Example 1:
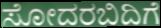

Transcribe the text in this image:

ಸೋದರಬಿದಿಗೆ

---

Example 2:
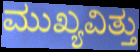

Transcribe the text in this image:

ಮುಖ್ಯವಿತ್ತು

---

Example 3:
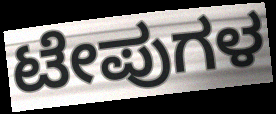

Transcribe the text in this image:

ಟೇಪುಗಳ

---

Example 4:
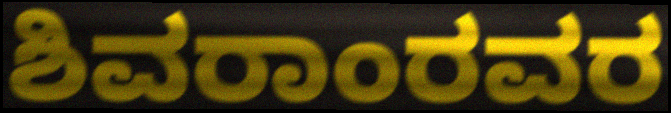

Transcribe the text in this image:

ಶಿವರಾಂರವರ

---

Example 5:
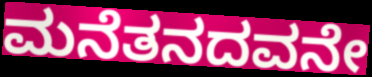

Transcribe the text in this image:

ಮನೆತನದವನೇ